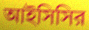
আইসিসির